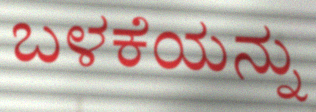
ಬಳಕೆಯನ್ನು